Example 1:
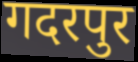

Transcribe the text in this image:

गदरपुर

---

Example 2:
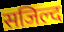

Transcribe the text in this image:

सजिल्द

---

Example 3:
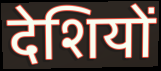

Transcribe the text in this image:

देशियों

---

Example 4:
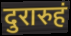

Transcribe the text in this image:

दुरारुहं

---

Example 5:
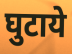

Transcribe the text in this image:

घुटाये